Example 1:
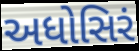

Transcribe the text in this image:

અધોસિરં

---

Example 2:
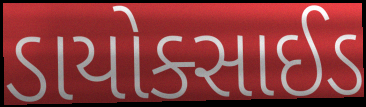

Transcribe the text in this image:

ડાયોક્સાઈડ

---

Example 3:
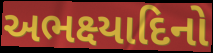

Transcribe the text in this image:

અભક્ષ્યાદિનો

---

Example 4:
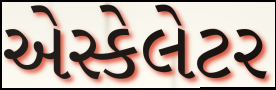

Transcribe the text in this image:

એસ્કેલેટર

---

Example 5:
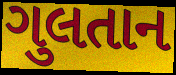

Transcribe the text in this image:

ગુલતાન